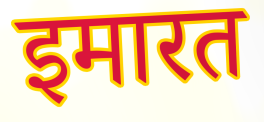
इमारत